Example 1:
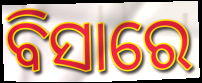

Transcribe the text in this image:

ବିସାରେ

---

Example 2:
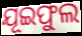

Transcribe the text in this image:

ଯୂଇଫୁଲ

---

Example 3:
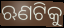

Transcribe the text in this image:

ଋଣଟିକୁ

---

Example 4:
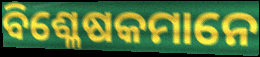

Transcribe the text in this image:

ବିଶ୍ଳେଷକମାନେ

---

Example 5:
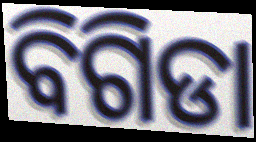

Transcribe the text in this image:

ବିଗିଡା